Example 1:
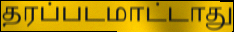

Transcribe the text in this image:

தரப்படமாட்டாது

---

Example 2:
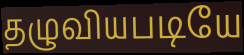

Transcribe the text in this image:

தழுவியபடியே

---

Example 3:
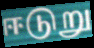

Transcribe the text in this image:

ஈடுறு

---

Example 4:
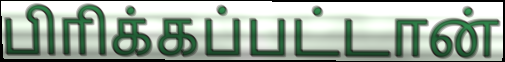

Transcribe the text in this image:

பிரிக்கப்பட்டான்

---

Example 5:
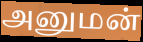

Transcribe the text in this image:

அனுமன்